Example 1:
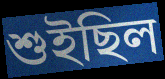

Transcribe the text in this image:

শুইছিল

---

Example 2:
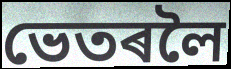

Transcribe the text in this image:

ভেতৰলৈ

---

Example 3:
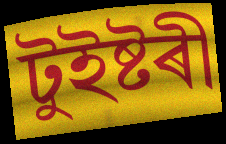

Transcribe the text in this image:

টুইষ্টৰী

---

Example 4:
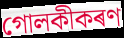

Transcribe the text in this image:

গোলকীকৰণ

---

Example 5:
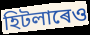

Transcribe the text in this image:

হিটলাৰেও